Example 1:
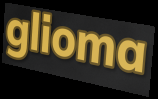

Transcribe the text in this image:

glioma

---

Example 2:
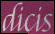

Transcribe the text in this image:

dicis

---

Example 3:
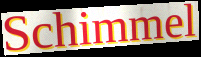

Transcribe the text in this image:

Schimmel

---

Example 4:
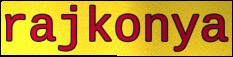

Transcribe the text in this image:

rajkonya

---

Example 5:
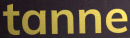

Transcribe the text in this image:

tanne